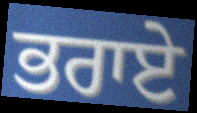
ਭਰਾਏ